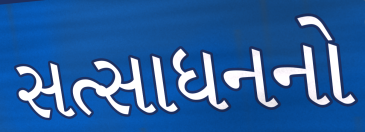
સત્સાધનનો